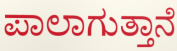
ಪಾಲಾಗುತ್ತಾನೆ